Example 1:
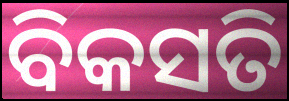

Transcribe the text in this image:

ବିକସତି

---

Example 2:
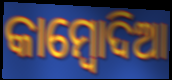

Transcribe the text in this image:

କାମ୍ବୋଦିଆ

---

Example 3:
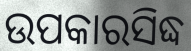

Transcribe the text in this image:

ଉପକାରସିଦ୍ଧ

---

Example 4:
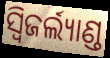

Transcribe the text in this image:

ସ୍ୱିଜର୍ଲ୍ୟାଣ୍ଡ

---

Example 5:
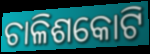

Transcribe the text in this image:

ଚାଳିଶକୋଟି